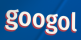
googol